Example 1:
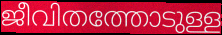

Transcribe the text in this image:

ജീവിതത്തോടുള്ള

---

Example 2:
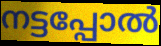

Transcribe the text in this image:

നട്ടപ്പോൽ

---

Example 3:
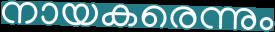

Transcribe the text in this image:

നായകരെന്നും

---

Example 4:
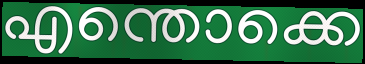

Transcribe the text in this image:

എന്തൊക്കെ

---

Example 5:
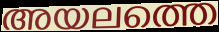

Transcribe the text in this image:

അയലത്തെ